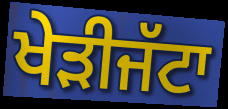
ਖੇੜੀਜੱਟਾ